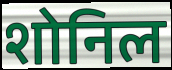
शोनिल